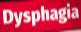
Dysphagia